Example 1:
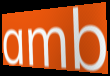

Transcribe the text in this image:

amb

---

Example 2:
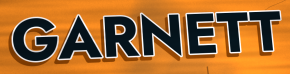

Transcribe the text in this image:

GARNETT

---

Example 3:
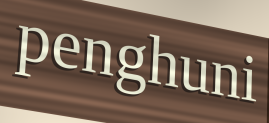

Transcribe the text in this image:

penghuni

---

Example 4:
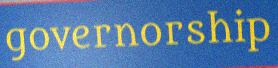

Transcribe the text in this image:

governorship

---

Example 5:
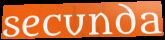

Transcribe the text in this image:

secunda